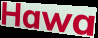
Hawa